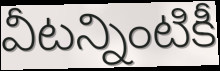
వీటన్నింటికీ